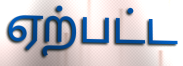
ஏற்பட்ட